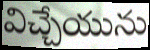
విచ్చేయును